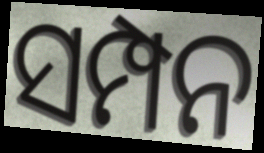
ସମ୍ପନ